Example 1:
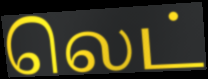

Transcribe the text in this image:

லெட்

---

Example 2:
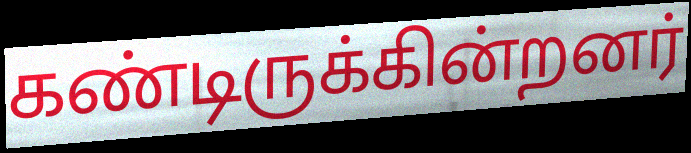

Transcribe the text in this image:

கண்டிருக்கின்றனர்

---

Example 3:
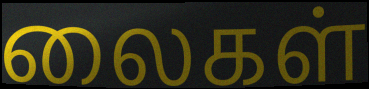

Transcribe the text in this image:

லைகள்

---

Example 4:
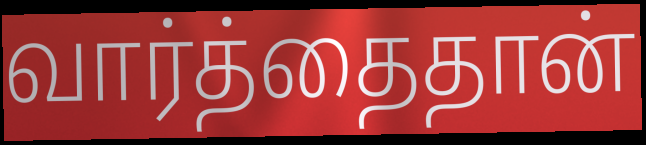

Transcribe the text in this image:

வார்த்தைதான்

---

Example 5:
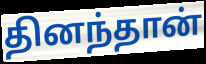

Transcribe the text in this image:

தினந்தான்